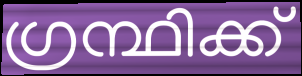
ഗ്രന്ഥിക്ക്